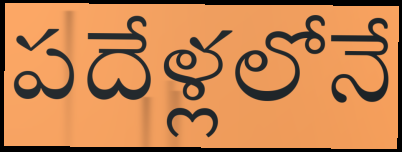
పదేళ్లలోనే